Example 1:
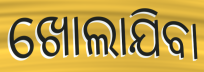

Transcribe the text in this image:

ଖୋଲାଯିବା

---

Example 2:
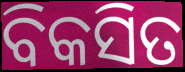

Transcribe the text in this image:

ବିକସିତ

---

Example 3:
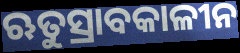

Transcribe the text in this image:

ଋତୁସ୍ରାବକାଳୀନ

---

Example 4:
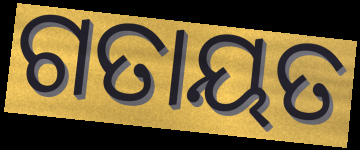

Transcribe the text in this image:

ଗତାୟତ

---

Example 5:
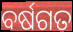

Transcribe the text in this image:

ବର୍ଷଗତ